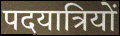
पदयात्रियों